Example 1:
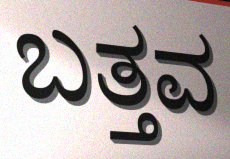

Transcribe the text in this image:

ಬತ್ತವ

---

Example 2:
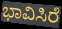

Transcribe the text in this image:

ಭಾವಿಸಿರೆ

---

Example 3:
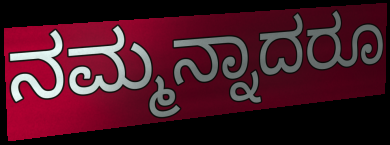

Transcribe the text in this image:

ನಮ್ಮನ್ನಾದರೂ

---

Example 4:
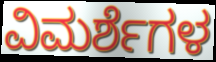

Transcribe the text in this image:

ವಿಮರ್ಶೆಗಳ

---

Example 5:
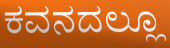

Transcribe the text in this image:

ಕವನದಲ್ಲೂ